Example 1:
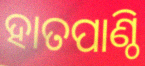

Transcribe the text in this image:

ହାତପାଣ୍ଠି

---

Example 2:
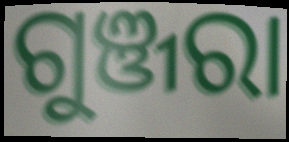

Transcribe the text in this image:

ଗୁଞ୍ଜରା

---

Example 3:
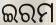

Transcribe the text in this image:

ଇରମ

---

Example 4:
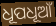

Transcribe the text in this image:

ଧୂପଧୂଆଁ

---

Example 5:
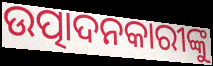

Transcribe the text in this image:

ଉତ୍ପାଦନକାରୀଙ୍କୁ